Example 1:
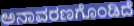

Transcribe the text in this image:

ಅನಾವರಣಗೊಂಡಿದೆ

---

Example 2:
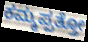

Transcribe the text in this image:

ಕಮ್ಮಪ್ಪತ್ತೋ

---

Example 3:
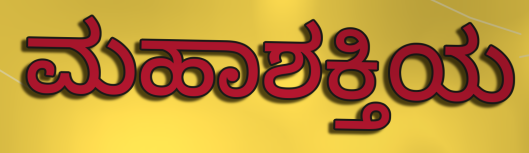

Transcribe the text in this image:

ಮಹಾಶಕ್ತಿಯ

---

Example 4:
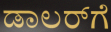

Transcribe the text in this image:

ಡಾಲರ್‌ಗೆ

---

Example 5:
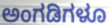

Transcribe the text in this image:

ಅಂಗಡಿಗಳೂ